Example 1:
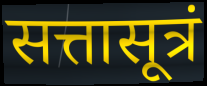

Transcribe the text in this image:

सत्तासूत्रं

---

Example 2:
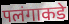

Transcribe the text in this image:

पलंगाकडे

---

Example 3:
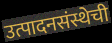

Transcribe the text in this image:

उत्पादनसंस्थेची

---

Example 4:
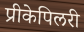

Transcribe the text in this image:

प्रीकेपिलरी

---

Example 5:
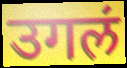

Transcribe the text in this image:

उगलं